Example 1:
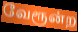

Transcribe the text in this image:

வேரூன்ற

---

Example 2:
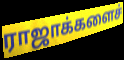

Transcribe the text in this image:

ராஜாக்களைச்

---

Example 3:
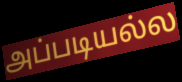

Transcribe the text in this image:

அப்படியல்ல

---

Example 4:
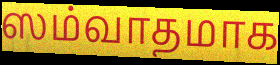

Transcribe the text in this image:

ஸம்வாதமாக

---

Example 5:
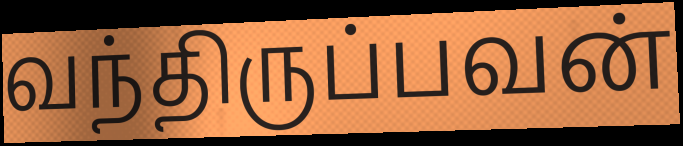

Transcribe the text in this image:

வந்திருப்பவன்